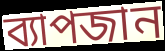
ব্যাপজান